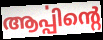
ആൎപ്പിന്റെ